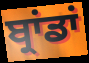
ਬ੍ਰਾਂਡਾਂ